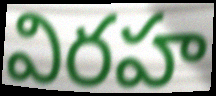
విరహ